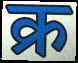
क्र